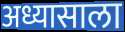
अध्यासाला